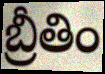
బ్రీతిం